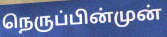
நெருப்பின்முன்